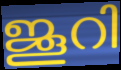
ജൂറി